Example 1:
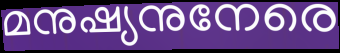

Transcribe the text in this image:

മനുഷ്യനുനേരെ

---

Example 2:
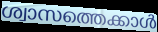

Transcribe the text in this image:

ശ്വാസത്തെക്കാൾ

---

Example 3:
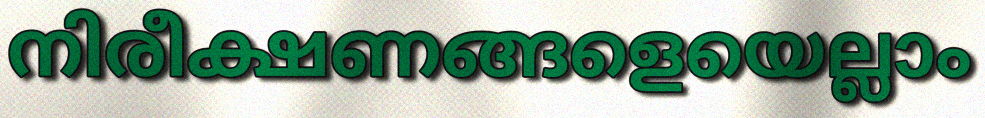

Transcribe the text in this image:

നിരീക്ഷണങ്ങളെയെല്ലാം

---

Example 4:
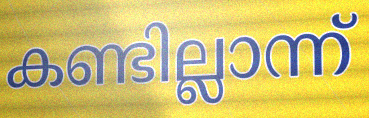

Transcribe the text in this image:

കണ്ടില്ലാന്ന്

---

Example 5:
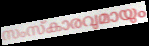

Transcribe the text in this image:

സംസ്‌കാരവുമായും